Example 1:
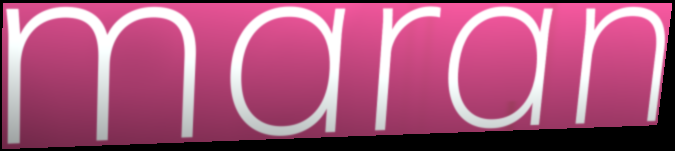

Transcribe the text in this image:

maran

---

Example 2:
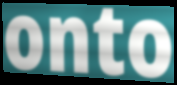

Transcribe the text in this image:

onto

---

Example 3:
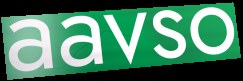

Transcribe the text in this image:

aavso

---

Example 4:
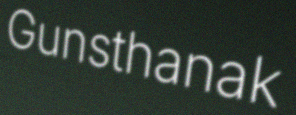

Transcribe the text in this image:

Gunsthanak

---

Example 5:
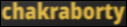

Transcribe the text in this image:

chakraborty